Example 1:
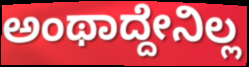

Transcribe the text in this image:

ಅಂಥಾದ್ದೇನಿಲ್ಲ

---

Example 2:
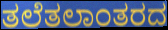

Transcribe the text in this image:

ತಲೆತಲಾಂತರದ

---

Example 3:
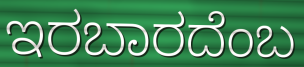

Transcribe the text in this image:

ಇರಬಾರದೆಂಬ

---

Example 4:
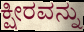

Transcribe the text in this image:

ಕ್ಷೀರವನ್ನು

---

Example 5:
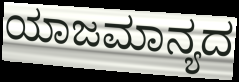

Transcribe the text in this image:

ಯಾಜಮಾನ್ಯದ